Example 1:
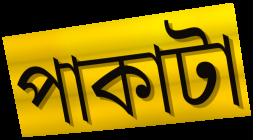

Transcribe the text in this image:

পাকাটা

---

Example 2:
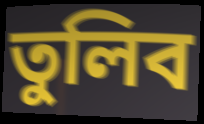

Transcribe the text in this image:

তুলিব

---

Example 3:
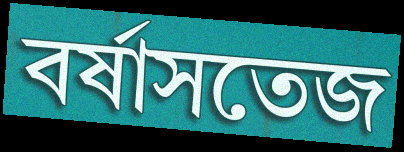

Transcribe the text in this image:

বর্ষাসতেজ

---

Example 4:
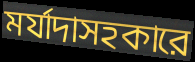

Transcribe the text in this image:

মর্যাদাসহকারে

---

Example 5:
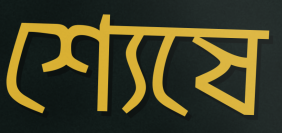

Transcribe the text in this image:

শ্যেষে